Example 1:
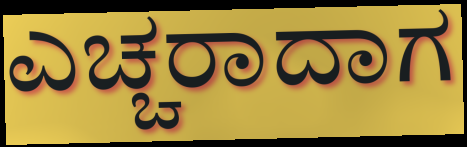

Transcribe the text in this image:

ಎಚ್ಚರಾದಾಗ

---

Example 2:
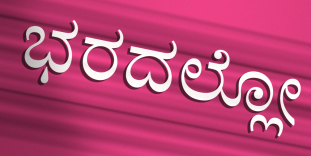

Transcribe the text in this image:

ಭರದಲ್ಲೋ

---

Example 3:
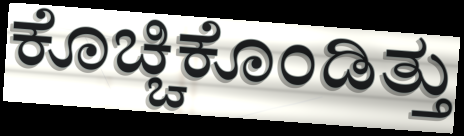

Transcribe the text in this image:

ಕೊಚ್ಚಿಕೊಂಡಿತ್ತು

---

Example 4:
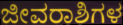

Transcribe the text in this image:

ಜೀವರಾಶಿಗಳ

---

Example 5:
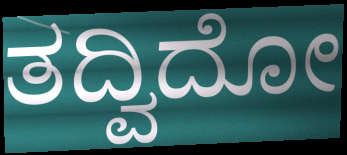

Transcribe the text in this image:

ತದ್ವಿದೋ